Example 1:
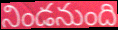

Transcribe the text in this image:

నిండనుంది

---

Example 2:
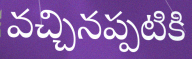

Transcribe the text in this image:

వచ్చినప్పటికి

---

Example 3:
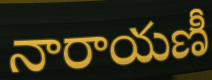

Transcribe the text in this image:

నారాయణీ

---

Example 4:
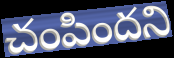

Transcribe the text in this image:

చంపిందని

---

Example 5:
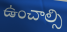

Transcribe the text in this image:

ఉంచాల్సి